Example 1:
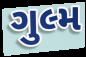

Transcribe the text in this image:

ગુલ્મ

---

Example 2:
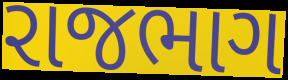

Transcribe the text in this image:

રાજભાગ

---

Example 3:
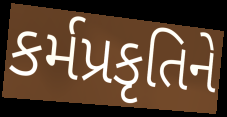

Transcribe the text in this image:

કર્મપ્રકૃતિને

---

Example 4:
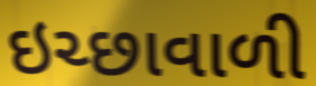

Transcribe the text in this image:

ઇચ્છાવાળી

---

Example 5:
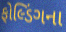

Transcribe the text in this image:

ફોલ્ડિંગના